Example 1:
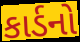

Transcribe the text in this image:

કાર્ડનો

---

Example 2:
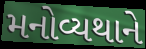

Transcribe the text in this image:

મનોવ્યથાને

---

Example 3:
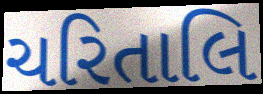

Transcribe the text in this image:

ચરિતાલિ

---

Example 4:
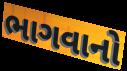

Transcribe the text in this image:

ભાગવાનો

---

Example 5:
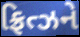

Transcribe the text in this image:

ફ્રિત્ઝને